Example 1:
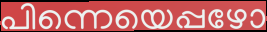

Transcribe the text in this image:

പിന്നെയെപ്പഴോ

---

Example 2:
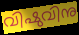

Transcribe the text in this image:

വിഷുവിനു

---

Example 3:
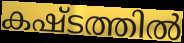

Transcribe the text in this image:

കഷ്ടത്തിൽ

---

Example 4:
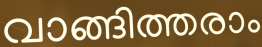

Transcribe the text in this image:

വാങ്ങിത്തരാം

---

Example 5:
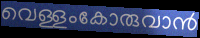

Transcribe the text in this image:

വെള്ളംകോരുവാൻ